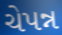
ચેપન્ન